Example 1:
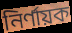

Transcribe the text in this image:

নিৰ্ণায়ক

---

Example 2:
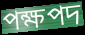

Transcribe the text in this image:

পক্ষপদ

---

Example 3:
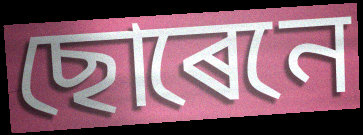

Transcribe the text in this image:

ছোৰেনে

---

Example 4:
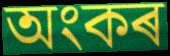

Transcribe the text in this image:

অংকৰ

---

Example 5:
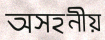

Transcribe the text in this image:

অসহনীয়